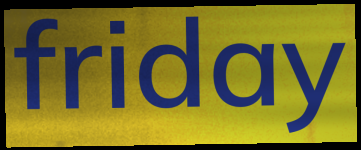
friday